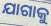
ଯାଗାକୁ